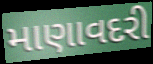
માણાવદરી